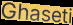
Ghaseti